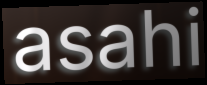
asahi